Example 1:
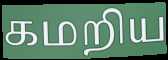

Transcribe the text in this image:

கமறிய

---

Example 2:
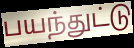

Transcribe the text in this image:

பயந்துட்டு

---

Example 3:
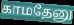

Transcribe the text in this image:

காமதேனு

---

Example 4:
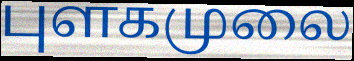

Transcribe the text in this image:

புளகமுலை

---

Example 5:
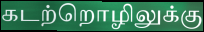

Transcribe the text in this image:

கடற்றொழிலுக்கு